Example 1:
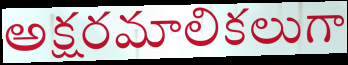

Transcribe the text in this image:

అక్షరమాలికలుగా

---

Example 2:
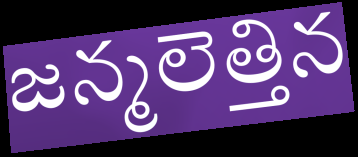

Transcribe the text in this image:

జన్మలెత్తిన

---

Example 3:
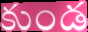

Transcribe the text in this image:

కుండ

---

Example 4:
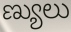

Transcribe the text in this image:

ణ్యులు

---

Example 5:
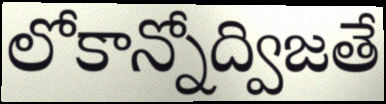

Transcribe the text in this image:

లోకాన్నోద్విజతే